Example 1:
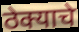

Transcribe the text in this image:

ठेक्याचे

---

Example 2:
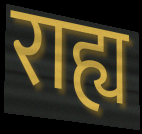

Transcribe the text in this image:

राह्य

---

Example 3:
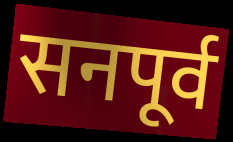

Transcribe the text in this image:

सनपूर्व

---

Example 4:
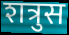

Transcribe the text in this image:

शत्रुस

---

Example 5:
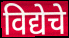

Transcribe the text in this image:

विद्येचे